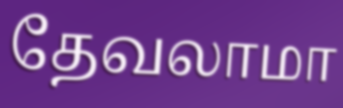
தேவலாமா